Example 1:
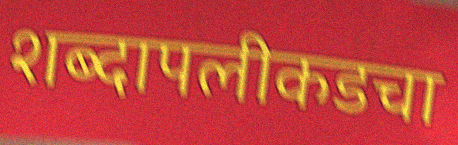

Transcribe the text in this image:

शब्दापलीकडचा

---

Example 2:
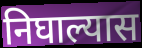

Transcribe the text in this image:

निघाल्यास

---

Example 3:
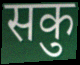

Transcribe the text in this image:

सकु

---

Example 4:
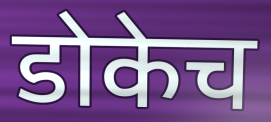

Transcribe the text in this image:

डोकेच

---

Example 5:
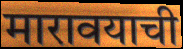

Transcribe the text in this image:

मारावयाची